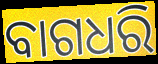
ବାଗଧରି